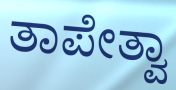
ತಾಪೇತ್ವಾ